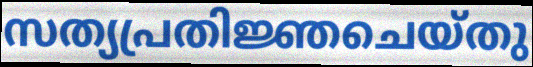
സത്യപ്രതിജ്ഞചെയ്തു